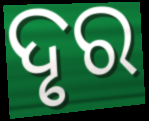
ଦୃର